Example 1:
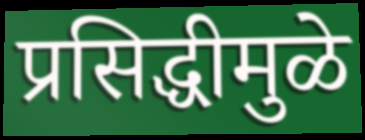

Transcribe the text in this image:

प्रसिद्धीमुळे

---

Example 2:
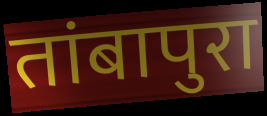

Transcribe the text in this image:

तांबापुरा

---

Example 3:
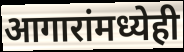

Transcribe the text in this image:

आगारांमध्येही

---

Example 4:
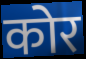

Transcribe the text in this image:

कोर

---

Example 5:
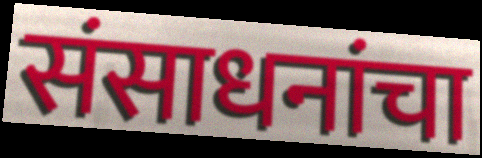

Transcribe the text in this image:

संसाधनांचा